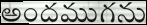
అందముగను